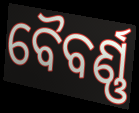
ବୈବର୍ଣ୍ଣ